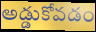
అడ్డుకోవడం